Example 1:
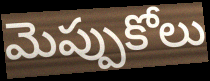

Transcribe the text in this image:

మెప్పుకోలు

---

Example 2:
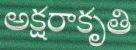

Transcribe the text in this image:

అక్షరాకృతి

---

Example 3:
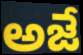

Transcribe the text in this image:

అజే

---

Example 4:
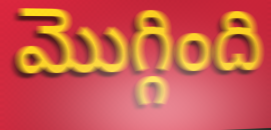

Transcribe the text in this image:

మొగ్గింది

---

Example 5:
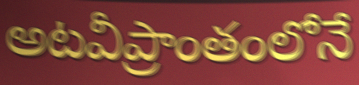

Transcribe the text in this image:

అటవీప్రాంతంలోనే